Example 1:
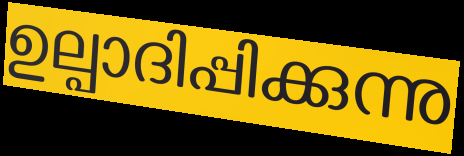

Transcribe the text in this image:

ഉല്പാദിപ്പിക്കുന്നു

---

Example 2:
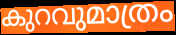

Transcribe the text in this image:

കുറവുമാത്രം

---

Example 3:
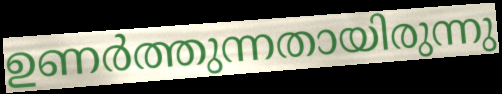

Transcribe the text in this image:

ഉണർത്തുന്നതായിരുന്നു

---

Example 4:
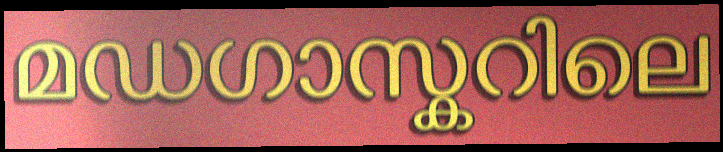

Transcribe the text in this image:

മഡഗാസ്കറിലെ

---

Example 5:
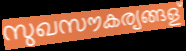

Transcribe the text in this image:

സുഖസൗകര്യങ്ങള്